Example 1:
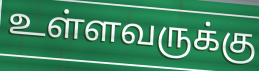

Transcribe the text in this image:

உள்ளவருக்கு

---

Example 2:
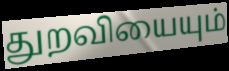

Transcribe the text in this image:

துறவியையும்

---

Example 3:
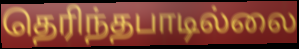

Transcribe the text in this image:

தெரிந்தபாடில்லை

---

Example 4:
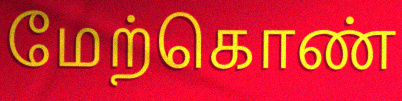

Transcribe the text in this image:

மேற்கொண்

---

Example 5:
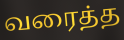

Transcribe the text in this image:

வரைத்த